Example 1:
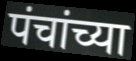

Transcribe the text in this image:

पंचांच्या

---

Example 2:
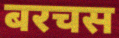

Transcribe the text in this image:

बरचस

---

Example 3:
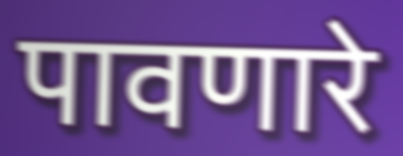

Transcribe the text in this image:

पावणारे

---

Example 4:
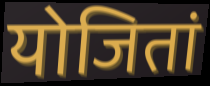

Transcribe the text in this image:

योजितां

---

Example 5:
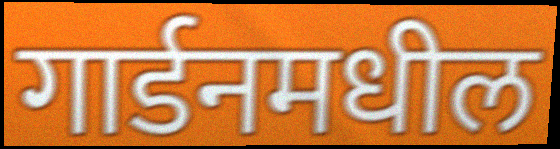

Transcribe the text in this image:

गार्डनमधील